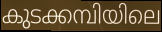
കുടക്കമ്പിയിലെ